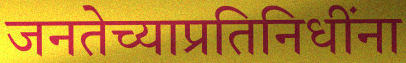
जनतेच्याप्रतिनिधींना